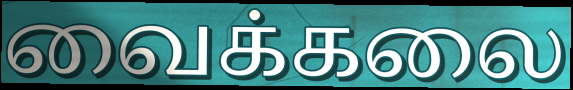
வைக்கலை